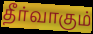
தீர்வாகும்